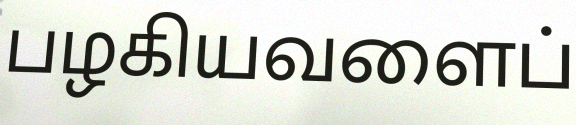
பழகியவளைப்